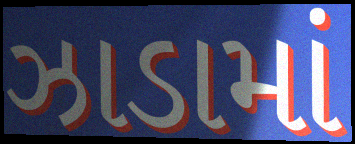
ઝાડામાં